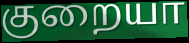
குறையா